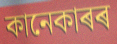
কানেকাৰৰ